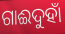
ଗାଈଦୁହାଁ